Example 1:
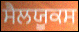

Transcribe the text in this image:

ਸੈਲਯੂਕਸ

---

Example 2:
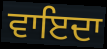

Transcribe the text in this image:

ਵਾਇਦਾ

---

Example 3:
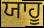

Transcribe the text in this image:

ਯਾਹੂ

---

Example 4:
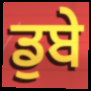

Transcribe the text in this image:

ਡੁਬੇ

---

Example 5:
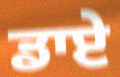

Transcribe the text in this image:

ਡਾਏ